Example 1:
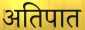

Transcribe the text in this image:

अतिपात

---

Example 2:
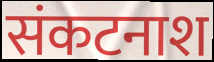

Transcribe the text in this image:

संकटनाश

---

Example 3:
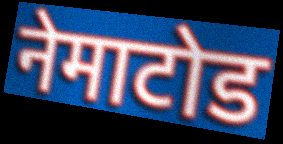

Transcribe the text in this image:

नेमाटोड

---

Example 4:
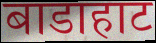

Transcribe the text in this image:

बाडाहाट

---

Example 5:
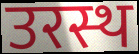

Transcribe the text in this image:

उरस्थ